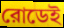
রোডেই